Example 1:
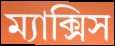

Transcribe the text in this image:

ম্যাক্সিস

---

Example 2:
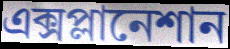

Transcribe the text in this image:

এক্সপ্লানেশান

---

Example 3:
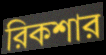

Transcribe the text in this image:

রিকশার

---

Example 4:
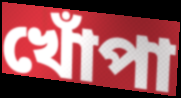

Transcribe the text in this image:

খোঁপা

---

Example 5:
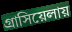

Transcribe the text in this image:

গ্রাসিয়েলায়